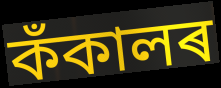
কঁকালৰ